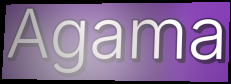
Agama